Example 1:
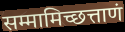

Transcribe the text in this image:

सम्मामिच्छत्ताणं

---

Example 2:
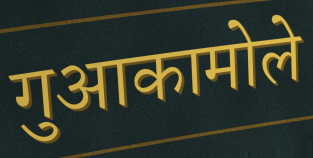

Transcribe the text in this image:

गुआकामोले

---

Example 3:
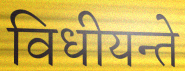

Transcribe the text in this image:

विधीयन्ते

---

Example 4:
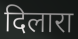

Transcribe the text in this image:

दिलारा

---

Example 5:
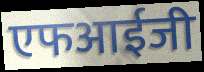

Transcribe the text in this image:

एफआईजी